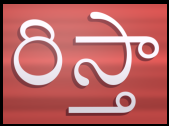
రిస్తా